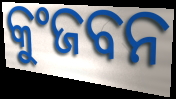
କୁଂଜବନ